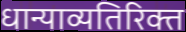
धान्याव्यतिरिक्त